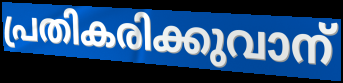
പ്രതികരിക്കുവാന്